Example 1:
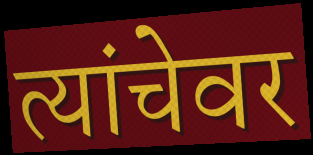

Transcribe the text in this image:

त्यांचेवर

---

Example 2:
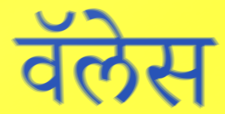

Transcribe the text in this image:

वॅलेस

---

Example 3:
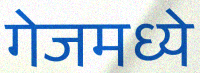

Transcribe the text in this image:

गेजमध्ये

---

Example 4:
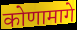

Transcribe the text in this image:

कोणामागे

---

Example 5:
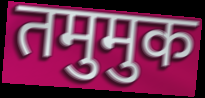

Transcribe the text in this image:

तमुमुक